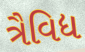
ત્રૈવિદ્ય